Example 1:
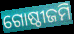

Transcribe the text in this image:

ଗୋଷ୍ଠୀଜମି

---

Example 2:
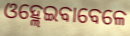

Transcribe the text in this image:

ଓହ୍ଲେଇବାବେଳେ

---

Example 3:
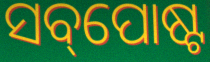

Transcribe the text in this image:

ସବ୍‌ପୋଷ୍ଟ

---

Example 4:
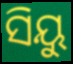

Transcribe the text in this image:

ସିୟୁ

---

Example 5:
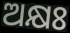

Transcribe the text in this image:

ଅକ୍ଷଃ